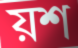
য়শ